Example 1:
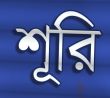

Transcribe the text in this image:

শূরি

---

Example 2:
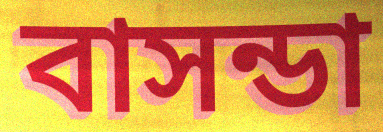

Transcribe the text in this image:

বাসন্ডা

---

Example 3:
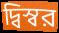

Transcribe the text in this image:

দ্বিস্বর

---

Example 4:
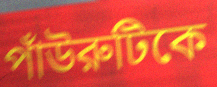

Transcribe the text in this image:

পাঁউরুটিকে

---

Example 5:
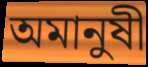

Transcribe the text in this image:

অমানুষী